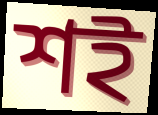
শই